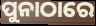
ପୁନାଠାରେ